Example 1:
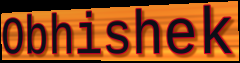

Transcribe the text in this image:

Obhishek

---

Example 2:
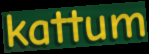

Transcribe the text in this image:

kattum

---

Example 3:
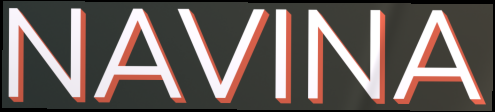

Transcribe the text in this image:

NAVINA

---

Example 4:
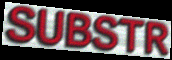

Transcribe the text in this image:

SUBSTR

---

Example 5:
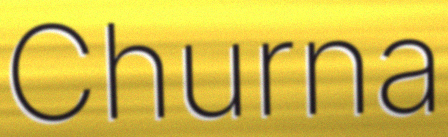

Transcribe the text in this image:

Churna